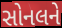
સોનલને